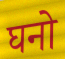
घनो